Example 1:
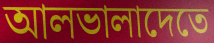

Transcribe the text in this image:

আলভালাদেতে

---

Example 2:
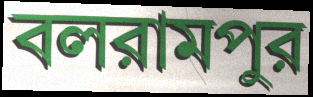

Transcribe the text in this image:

বলরামপুর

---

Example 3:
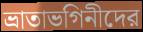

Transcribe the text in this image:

ভ্রাতাভগিনীদের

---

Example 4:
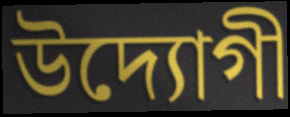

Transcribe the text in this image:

উদ্যোগী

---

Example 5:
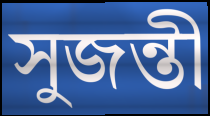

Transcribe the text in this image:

সুজন্তী